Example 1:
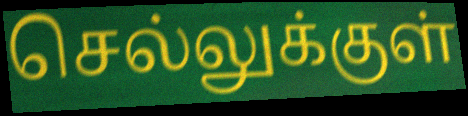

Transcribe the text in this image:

செல்லுக்குள்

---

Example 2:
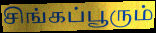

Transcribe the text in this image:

சிங்கப்பூரும்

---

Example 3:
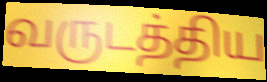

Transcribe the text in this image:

வருடத்திய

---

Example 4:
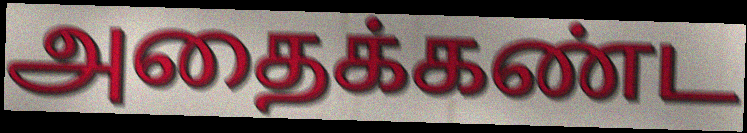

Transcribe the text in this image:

அதைக்கண்ட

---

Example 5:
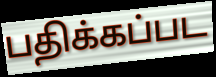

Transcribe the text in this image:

பதிக்கப்பட